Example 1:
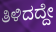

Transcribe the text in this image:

ತಿಳಿದದ್ದೇ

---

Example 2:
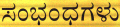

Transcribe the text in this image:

ಸಂಭಂಧಗಳು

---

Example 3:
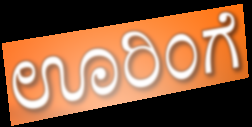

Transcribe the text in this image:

ಊರಿಂಗೆ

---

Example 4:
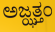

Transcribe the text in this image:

ಅಜ್ಝತ್ತಂ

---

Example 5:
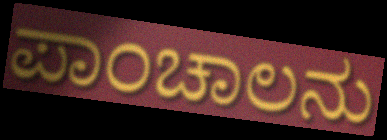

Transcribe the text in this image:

ಪಾಂಚಾಲನು